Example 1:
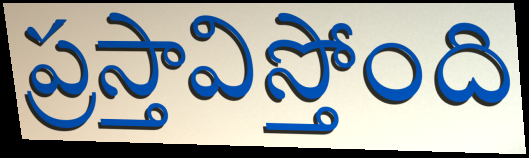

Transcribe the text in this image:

ప్రస్తావిస్తోంది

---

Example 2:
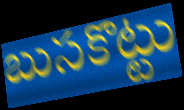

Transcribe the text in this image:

బుసకొట్టు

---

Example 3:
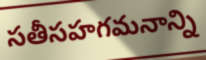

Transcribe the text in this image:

సతీసహగమనాన్ని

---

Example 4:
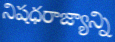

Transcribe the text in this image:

నిషధరాజ్యాన్ని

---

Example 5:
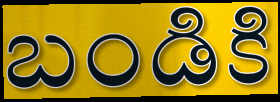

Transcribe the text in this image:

బండికి